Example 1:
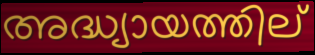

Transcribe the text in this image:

അദ്ധ്യായത്തില്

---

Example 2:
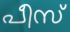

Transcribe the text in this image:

പീസ്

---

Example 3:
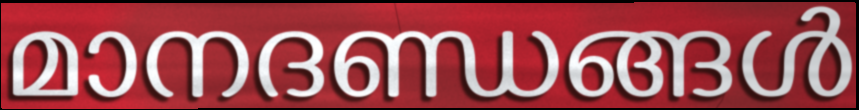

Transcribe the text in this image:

മാനദണ്ഡങ്ങൾ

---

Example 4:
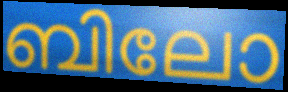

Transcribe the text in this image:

ബിലോ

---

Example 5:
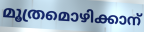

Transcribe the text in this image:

മൂത്രമൊഴിക്കാന്